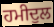
ਹਮੀਦੁਲ